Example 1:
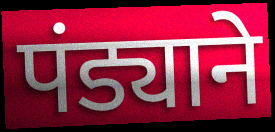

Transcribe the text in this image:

पंड्याने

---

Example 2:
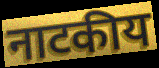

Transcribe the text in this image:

नाटकीय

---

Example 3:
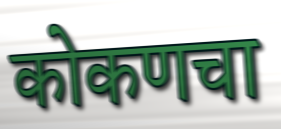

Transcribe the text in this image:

कोकणचा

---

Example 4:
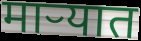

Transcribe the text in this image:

माऱ्यात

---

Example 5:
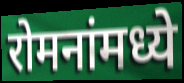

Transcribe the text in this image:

रोमनांमध्ये